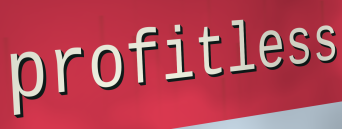
profitless